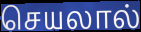
செயலால்